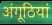
अंगूठियां